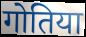
गोतिया